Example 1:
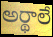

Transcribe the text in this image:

అర్థాలే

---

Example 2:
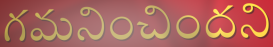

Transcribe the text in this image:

గమనించిందని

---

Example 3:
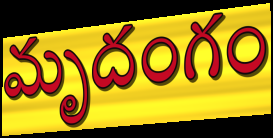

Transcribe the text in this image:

మృదంగం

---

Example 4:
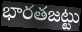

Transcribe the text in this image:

భారతజట్టు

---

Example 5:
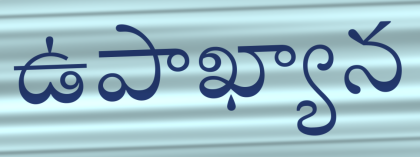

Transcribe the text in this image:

ఉపాఖ్యాన